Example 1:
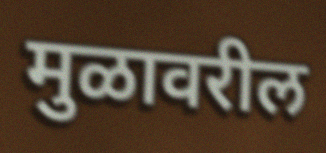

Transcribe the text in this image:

मुळावरील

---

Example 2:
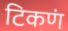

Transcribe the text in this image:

टिकणं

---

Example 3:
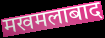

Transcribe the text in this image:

मखमलाबाद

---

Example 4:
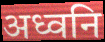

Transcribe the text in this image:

अध्वनि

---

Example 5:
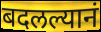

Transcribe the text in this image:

बदलल्यानं